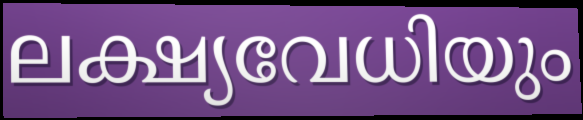
ലക്ഷ്യവേധിയും